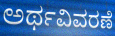
ಅರ್ಥವಿವರಣೆ